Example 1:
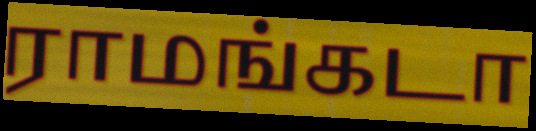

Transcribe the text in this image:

ராமங்கடா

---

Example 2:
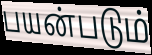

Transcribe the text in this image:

பயன்படும்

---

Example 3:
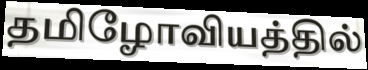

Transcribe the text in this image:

தமிழோவியத்தில்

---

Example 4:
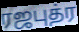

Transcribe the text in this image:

ரஜபுத்ர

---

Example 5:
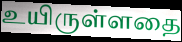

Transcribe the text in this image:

உயிருள்ளதை